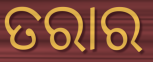
ତରାର